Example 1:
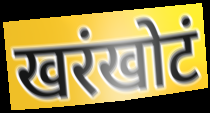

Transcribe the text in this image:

खरंखोटं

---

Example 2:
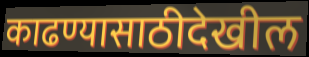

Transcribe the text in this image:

काढण्यासाठीदेखील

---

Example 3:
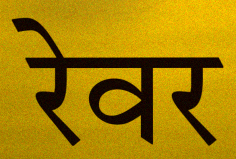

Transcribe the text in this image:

रेवर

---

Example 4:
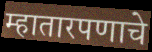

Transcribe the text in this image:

म्हातारपणाचे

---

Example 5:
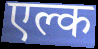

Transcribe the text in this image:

एल्क